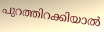
പുറത്തിറക്കിയാൽ